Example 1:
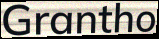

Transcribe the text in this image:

Grantho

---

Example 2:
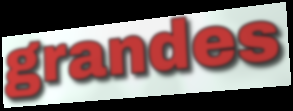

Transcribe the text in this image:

grandes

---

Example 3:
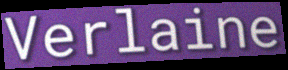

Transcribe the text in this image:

Verlaine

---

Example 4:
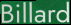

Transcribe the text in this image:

Billard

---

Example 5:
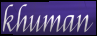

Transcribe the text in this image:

khuman